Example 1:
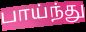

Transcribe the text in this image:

பாய்ந்து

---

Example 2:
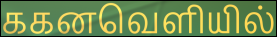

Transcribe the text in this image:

ககனவெளியில்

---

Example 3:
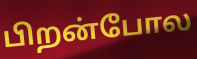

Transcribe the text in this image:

பிறன்போல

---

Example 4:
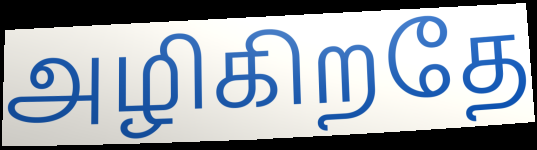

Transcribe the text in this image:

அழிகிறதே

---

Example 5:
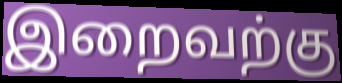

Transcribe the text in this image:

இறைவற்கு